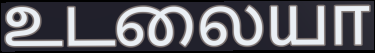
உடலையா